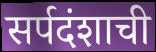
सर्पदंशाची